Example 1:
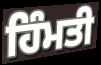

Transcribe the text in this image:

ਹਿੰਮਤੀ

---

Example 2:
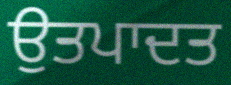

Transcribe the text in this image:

ਉਤਪਾਦਤ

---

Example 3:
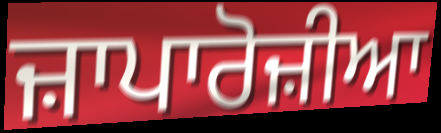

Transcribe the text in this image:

ਜ਼ਾਪਾਰੋਜ਼ੀਆ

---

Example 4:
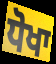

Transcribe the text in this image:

ਧੋਖਾ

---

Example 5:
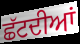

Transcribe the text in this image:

ਛੱਟਦੀਆਂ